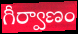
గీర్వాణం